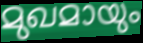
മുഖമായും